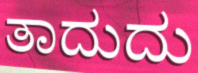
ತಾದುದು